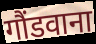
गौंडवाना